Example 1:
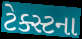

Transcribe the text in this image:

ટેક્સ્ટના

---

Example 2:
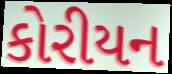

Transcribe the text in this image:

કોરીયન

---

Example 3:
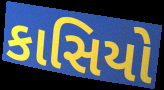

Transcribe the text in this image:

કાસિયો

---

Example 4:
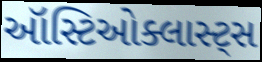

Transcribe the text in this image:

ઑસ્ટિઓક્લાસ્ટ્સ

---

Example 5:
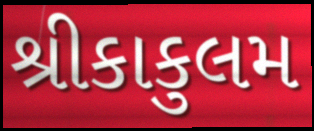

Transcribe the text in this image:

શ્રીકાકુલમ